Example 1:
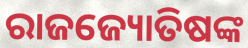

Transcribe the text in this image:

ରାଜଜ୍ୟୋତିଷଙ୍କ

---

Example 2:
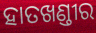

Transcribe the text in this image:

ହାତଖଣ୍ଡୀର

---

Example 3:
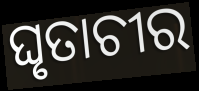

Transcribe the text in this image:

ଘୃତାଚୀର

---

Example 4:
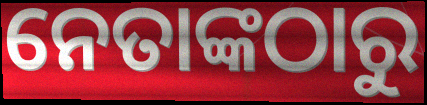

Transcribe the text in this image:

ନେତାଙ୍କଠାରୁ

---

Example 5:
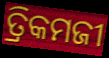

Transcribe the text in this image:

ତ୍ରିକମଜୀ